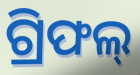
ଗ୍ରିଫଲ୍